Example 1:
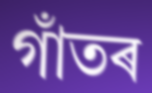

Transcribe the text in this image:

গাঁতৰ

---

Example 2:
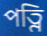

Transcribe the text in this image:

পত্নি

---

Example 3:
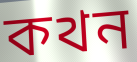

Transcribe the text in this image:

কথন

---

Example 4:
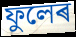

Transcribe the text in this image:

ফুলেৰ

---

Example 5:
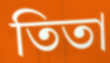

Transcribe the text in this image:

তিতা